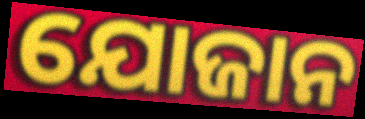
ଯୋଜାନ